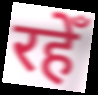
रहेँ